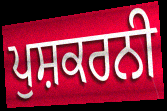
ਪੁਸ਼ਕਰਨੀ